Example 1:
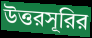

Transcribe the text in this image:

উত্তরসূরির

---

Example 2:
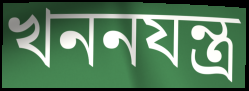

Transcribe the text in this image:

খননযন্ত্র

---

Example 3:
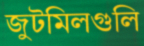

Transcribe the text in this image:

জুটমিলগুলি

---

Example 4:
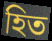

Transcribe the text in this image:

হিত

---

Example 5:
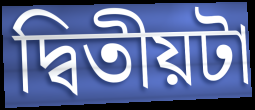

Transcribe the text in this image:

দ্বিতীয়টা